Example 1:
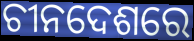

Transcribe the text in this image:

ଚୀନଦେଶରେ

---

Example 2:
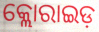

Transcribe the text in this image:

କ୍ଲୋରାଇଡ଼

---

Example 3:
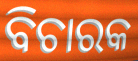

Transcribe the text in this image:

ବିଚାରକ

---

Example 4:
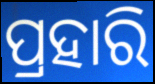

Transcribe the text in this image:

ପ୍ରହାରି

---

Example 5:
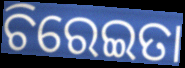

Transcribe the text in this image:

ଚିରେଇତା